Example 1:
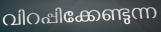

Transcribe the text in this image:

വിറപ്പിക്കേണ്ടുന്ന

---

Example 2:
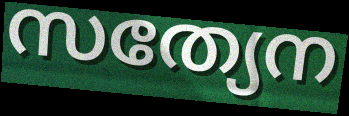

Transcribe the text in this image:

സത്യേന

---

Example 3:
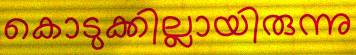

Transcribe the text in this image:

കൊടുക്കില്ലായിരുന്നു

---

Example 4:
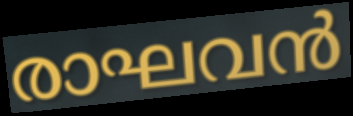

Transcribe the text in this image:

രാഘവൻ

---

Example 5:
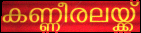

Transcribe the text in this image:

കണ്ണീരലയ്ക്ക്